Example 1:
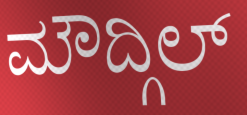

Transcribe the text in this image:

ಮೌದ್ಗಿಲ್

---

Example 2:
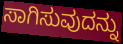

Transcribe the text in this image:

ಸಾಗಿಸುವುದನ್ನು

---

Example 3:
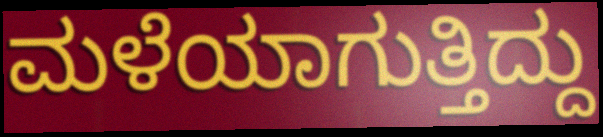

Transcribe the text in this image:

ಮಳೆಯಾಗುತ್ತಿದ್ದು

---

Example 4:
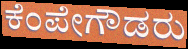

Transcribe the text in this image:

ಕೆಂಪೇಗೌಡರು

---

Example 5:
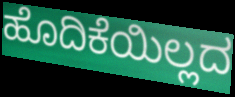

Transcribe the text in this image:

ಹೊದಿಕೆಯಿಲ್ಲದ